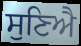
ਸੁਣਿਐ